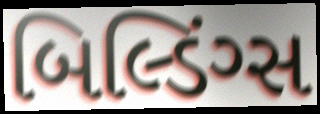
બિલ્ડિંગ્સ